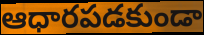
ఆధారపడకుండా